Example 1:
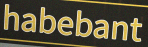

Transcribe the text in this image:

habebant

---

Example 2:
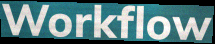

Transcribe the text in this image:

Workflow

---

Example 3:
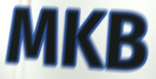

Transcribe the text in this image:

MKB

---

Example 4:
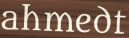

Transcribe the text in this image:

ahmedt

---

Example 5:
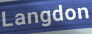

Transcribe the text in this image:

Langdon